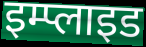
इम्प्लाइड